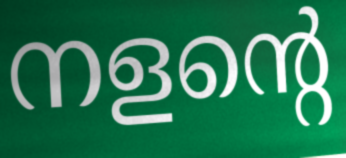
നളന്റെ